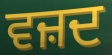
ਵਜ਼ਦ